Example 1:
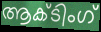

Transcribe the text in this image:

ആക്ടിംഗ്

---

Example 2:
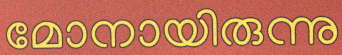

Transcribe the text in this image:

മോനായിരുന്നു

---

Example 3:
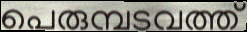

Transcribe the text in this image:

പെരുമ്പടവത്ത്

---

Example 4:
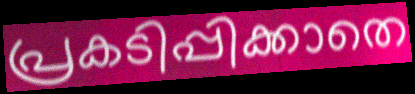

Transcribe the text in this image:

പ്രകടിപ്പിക്കാതെ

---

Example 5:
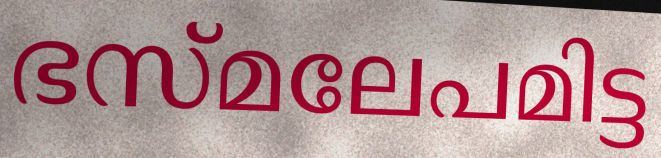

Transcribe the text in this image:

ഭസ്മലേപമിട്ട